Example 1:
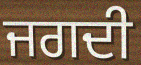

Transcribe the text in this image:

ਜਗਦੀ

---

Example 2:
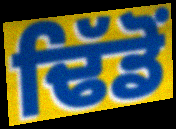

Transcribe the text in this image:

ਢਿੱਡੋਂ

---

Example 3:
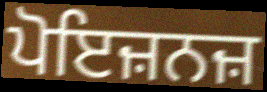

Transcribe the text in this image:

ਪੋਇਜ਼ਨਜ਼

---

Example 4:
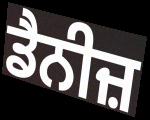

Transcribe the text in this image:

ਡੈਨੀਜ਼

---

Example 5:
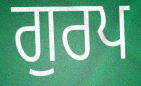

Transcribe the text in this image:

ਗੁਰਪ